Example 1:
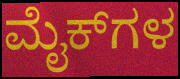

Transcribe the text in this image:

ಮೈಕ್‌ಗಳ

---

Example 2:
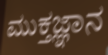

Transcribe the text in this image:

ಮುಕ್ತಜ್ಞಾನ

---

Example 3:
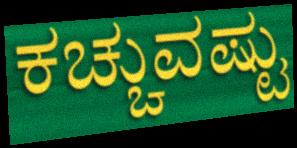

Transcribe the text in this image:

ಕಚ್ಚುವಷ್ಟು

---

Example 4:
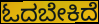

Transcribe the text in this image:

ಓದಬೇಕಿದೆ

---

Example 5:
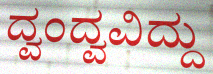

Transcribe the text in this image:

ದ್ವಂದ್ವವಿದ್ದು